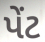
પેંટ